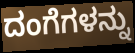
ದಂಗೆಗಳನ್ನು